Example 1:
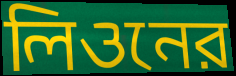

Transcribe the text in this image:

লিওনের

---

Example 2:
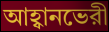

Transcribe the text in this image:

আহ্বানভেরী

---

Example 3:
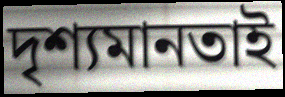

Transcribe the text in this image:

দৃশ্যমানতাই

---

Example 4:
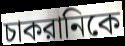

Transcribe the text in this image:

চাকরানিকে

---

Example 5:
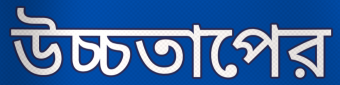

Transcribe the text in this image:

উচ্চতাপের